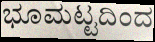
ಭೂಮಟ್ಟದಿಂದ